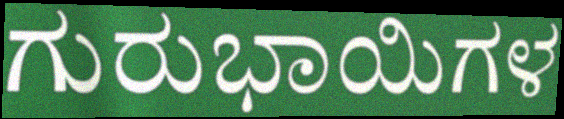
ಗುರುಭಾಯಿಗಳ